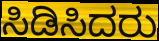
ಸಿಡಿಸಿದರು